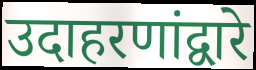
उदाहरणांद्वारे